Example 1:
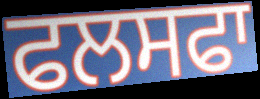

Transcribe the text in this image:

ਫਲਸਫਾ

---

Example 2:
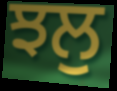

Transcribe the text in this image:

ਝਲੁ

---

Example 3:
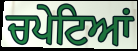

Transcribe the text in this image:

ਚਪੇਟਿਆਂ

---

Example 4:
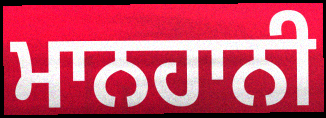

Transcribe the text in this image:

ਮਾਨਹਾਨੀ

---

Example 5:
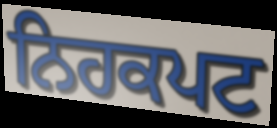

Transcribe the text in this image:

ਨਿਹਕਪਟ